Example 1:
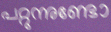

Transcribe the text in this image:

പറ്റുന്നുണ്ടോ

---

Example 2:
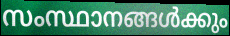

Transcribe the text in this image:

സംസ്ഥാനങ്ങൾക്കും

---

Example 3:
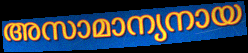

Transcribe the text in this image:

അസാമാന്യനായ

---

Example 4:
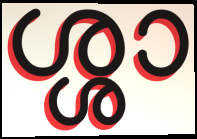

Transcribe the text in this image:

ശ്ശാ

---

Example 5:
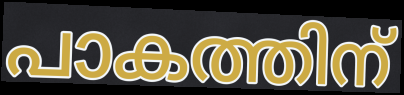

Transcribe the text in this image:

പാകത്തിന്